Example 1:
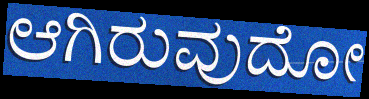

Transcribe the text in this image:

ಆಗಿರುವುದೋ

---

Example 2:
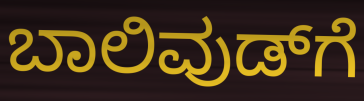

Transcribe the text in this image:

ಬಾಲಿವುಡ್‌ಗೆ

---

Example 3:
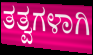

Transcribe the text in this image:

ತತ್ವಗಳಾಗಿ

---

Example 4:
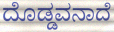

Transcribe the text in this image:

ದೊಡ್ಡವನಾದೆ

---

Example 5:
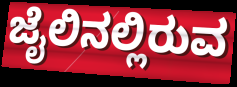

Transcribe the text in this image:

ಜೈಲಿನಲ್ಲಿರುವ